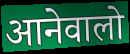
आनेवालो